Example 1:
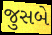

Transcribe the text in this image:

જુસબે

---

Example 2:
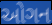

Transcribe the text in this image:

ઓગન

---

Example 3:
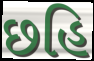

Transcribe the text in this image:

છહિ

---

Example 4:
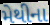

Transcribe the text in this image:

મેથીના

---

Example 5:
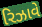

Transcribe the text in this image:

રિઝાવે